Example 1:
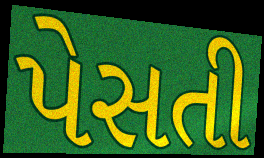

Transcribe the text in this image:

પેસતી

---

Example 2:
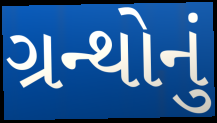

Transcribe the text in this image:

ગ્રન્થોનું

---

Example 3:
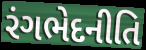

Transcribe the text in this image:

રંગભેદનીતિ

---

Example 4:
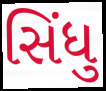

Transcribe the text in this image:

સિંધુ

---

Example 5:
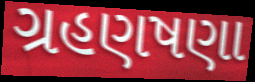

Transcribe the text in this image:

ગ્રહણષણા